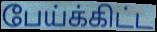
பேய்க்கிட்ட